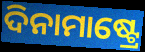
ଦିନାମାଷ୍ଟ୍ରେ